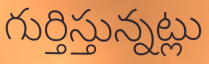
గుర్తిస్తున్నట్లు